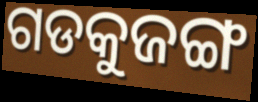
ଗଡକୁଜଙ୍ଗ